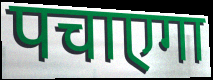
पचाएगा